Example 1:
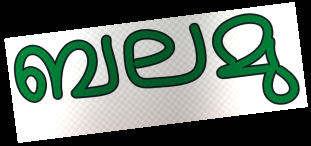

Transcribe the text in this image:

ബലമു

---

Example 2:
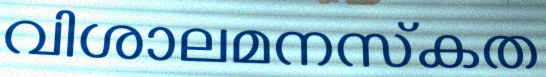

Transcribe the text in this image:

വിശാലമനസ്‌കത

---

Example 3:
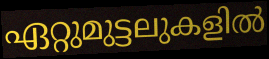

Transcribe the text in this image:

ഏറ്റുമുട്ടലുകളിൽ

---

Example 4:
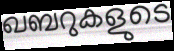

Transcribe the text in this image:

ഖബറുകളുടെ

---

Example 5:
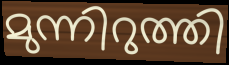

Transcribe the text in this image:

മുന്നിറുത്തി